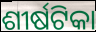
ଶୀର୍ଷଟିକା